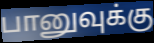
பானுவுக்கு